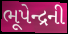
ભૂપેન્દ્રની